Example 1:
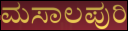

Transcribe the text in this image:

ಮಸಾಲಪುರಿ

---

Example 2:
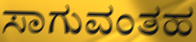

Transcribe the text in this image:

ಸಾಗುವಂತಹ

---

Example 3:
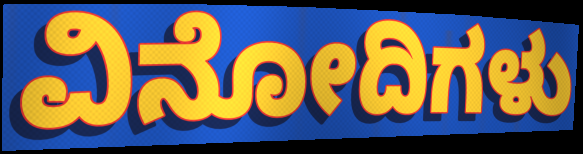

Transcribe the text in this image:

ವಿನೋದಿಗಳು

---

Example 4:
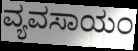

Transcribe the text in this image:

ವ್ಯವಸಾಯಂ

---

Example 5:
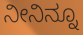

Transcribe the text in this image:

ನೀನಿನ್ನೂ